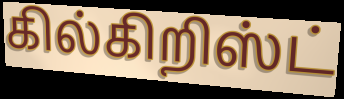
கில்கிறிஸ்ட்